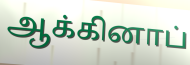
ஆக்கினாப்